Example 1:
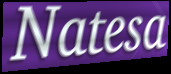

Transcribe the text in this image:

Natesa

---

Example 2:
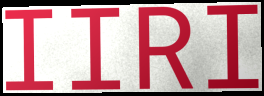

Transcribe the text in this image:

IIRI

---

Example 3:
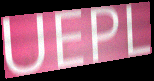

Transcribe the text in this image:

UEPL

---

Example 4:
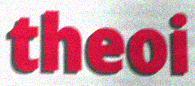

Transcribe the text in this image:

theoi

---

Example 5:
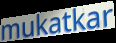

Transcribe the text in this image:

mukatkar